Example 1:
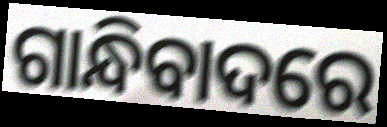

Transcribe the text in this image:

ଗାନ୍ଧିବାଦରେ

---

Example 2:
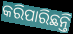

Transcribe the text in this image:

କରିପାରିଛନ୍ତି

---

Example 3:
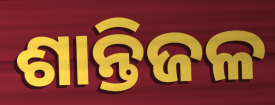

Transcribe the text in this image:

ଶାନ୍ତିଜଳ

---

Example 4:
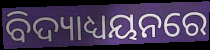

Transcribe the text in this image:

ବିଦ୍ୟାଧ୍ୟୟନରେ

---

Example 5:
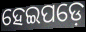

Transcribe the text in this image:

ହେଇପଡ଼େ